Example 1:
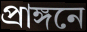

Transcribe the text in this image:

প্রাঙ্গনে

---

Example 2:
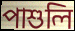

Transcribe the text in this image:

পাশুলি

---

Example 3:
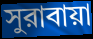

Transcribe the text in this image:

সুরাবায়া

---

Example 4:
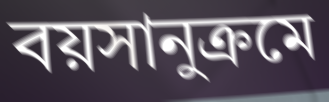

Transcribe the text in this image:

বয়সানুক্রমে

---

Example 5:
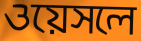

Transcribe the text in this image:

ওয়েসলে